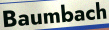
Baumbach